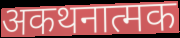
अकथनात्मक